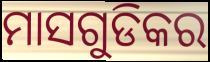
ମାସଗୁଡିକର